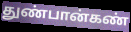
துண்பான்கண்